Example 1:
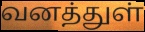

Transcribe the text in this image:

வனத்துள்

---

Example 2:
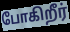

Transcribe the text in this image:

போகிறீர்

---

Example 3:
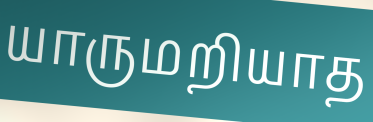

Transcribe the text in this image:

யாருமறியாத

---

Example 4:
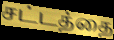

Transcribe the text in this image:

சட்டத்தை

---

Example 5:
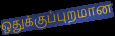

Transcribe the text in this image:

ஒதுக்குப்புறமான